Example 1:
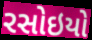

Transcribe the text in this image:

રસોઇયો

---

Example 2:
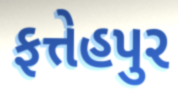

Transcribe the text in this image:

ફત્તેહપુર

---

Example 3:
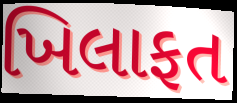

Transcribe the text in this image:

ખિલાફત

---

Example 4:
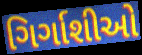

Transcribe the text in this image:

ગિર્ગાશીઓ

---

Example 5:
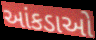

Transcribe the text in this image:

આંકડાઓ